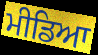
ਮੀਡਿਆ